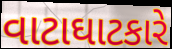
વાટાઘાટકારે